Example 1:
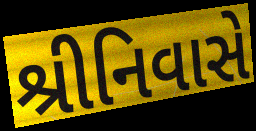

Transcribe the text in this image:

શ્રીનિવાસે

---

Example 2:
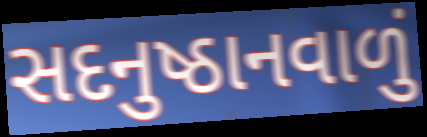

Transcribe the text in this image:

સદનુષ્ઠાનવાળું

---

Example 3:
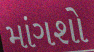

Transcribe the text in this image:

માંગશો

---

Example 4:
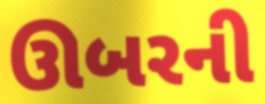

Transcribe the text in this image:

ઊબરની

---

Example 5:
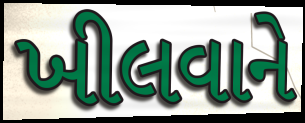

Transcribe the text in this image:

ખીલવાને